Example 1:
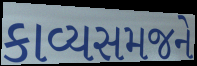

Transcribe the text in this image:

કાવ્યસમજને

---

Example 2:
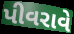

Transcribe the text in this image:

પીવરાવે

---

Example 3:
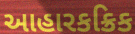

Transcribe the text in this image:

આહારકક્રિક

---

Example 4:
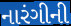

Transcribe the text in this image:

નારંગીની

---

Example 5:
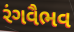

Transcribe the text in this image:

રંગવૈભવ